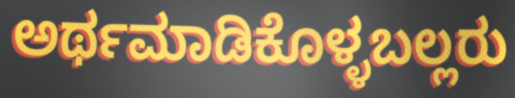
ಅರ್ಥಮಾಡಿಕೊಳ್ಳಬಲ್ಲರು